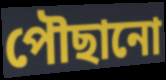
পৌছানো